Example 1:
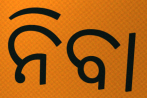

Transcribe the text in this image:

ନିବା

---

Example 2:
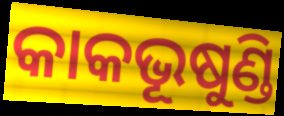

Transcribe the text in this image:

କାକଭୂଷୁଣ୍ଡି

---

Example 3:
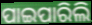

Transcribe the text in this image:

ପାଇପାରିଲି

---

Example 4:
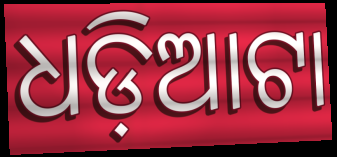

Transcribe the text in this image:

ଧଡ଼ିଆଟା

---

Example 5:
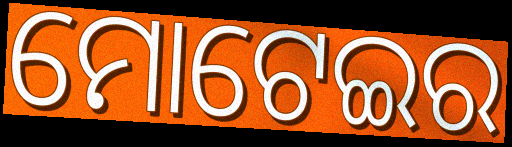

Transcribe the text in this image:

ମୋଟେଇର